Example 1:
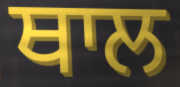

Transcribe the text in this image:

ਥਾਲ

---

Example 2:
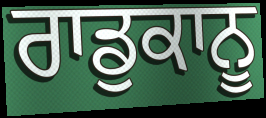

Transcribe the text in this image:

ਰਾਡੁਕਾਨੂ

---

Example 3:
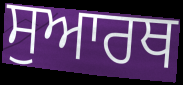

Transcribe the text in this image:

ਸੁਆਰਥ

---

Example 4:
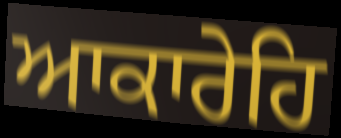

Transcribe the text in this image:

ਆਕਾਰੇਹਿ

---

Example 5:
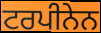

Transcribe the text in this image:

ਟਰਪੀਨੇਨ